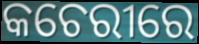
କଚେରୀରେ